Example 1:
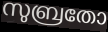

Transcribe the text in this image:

സുബ്രതോ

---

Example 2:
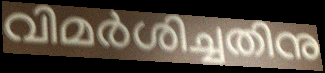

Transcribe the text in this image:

വിമർശിച്ചതിനു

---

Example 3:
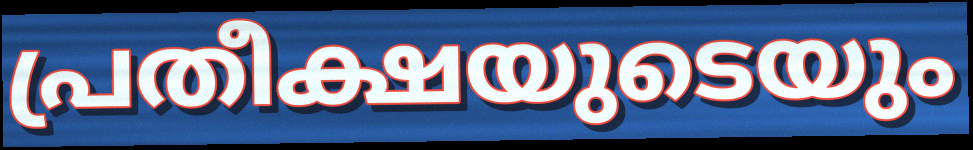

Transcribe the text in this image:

പ്രതീക്ഷയുടെയും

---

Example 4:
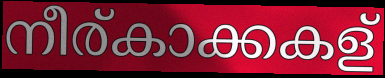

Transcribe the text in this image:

നീര്കാക്കകള്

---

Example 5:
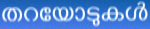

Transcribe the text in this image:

തറയോടുകൾ